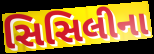
સિસિલીના